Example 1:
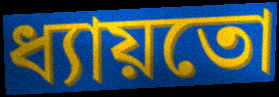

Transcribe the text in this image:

ধ্যায়তো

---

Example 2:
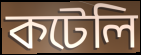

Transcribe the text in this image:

কটেলি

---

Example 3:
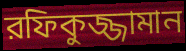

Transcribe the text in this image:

রফিকুজ্জামান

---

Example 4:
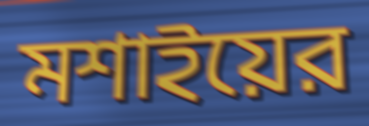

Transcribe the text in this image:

মশাইয়ের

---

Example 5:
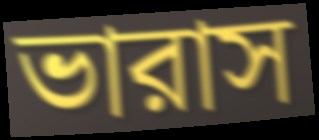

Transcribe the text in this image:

ভারাস